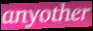
anyother